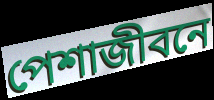
পেশাজীবনে